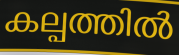
കല്പത്തിൽ